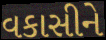
વકાસીને